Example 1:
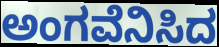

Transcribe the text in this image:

ಅಂಗವೆನಿಸಿದ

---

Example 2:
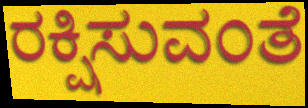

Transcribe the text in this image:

ರಕ್ಷಿಸುವಂತೆ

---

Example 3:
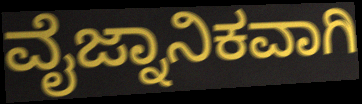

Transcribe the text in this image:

ವೈಜ್ನಾನಿಕವಾಗಿ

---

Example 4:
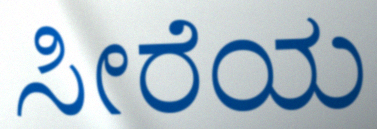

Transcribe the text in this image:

ಸೀರೆಯ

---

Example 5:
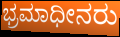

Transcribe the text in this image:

ಭ್ರಮಾಧೀನರು